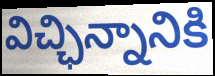
విచ్ఛిన్నానికి